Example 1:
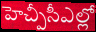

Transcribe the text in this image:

హెచ్పీసీఎల్లో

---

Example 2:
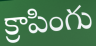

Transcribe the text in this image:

క్రాపింగు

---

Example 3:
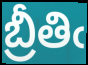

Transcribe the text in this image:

బ్రీతిఁ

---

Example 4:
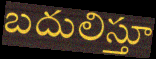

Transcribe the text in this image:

బదులిస్తూ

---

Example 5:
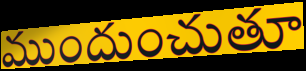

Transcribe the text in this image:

ముందుంచుతూ